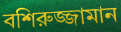
বশিরুজ্জামান